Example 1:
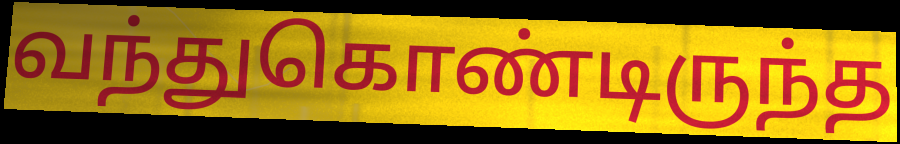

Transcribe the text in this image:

வந்துகொண்டிருந்த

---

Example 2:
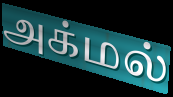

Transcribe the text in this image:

அக்மல்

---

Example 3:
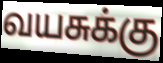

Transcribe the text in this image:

வயசுக்கு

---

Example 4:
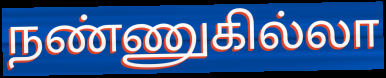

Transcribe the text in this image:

நண்ணுகில்லா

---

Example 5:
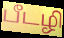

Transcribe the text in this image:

பீடழி